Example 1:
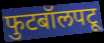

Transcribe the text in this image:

फुटबॉलपटू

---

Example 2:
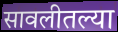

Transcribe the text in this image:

सावलीतल्या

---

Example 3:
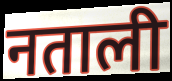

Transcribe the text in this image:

नताली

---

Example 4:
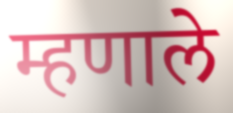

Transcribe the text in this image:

म्हणाले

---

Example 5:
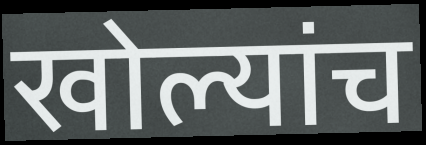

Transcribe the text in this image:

खोल्यांच